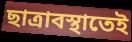
ছাত্রাবস্থাতেই